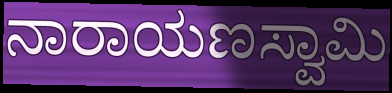
ನಾರಾಯಣಸ್ವಾಮಿ